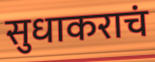
सुधाकराचं